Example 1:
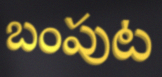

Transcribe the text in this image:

బంపుట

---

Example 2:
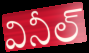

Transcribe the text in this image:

వినీల్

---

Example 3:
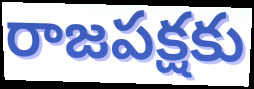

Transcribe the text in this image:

రాజపక్షకు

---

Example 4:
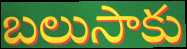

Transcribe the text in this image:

బలుసాకు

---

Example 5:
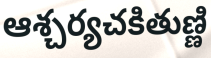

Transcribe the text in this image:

ఆశ్చర్యచకితుణ్ణి